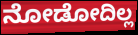
ನೋಡೋದಿಲ್ಲ